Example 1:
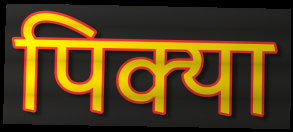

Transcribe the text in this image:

पिक्या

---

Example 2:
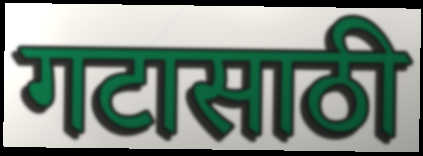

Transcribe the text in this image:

गटासाठी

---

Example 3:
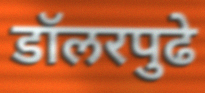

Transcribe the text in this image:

डॉलरपुढे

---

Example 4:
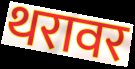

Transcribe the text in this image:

थरावर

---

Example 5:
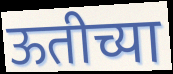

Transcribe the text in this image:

ऊतीच्या